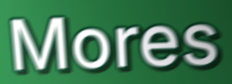
Mores